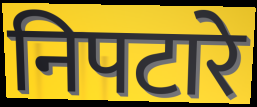
निपटारे